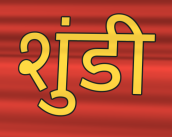
शुंडी